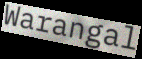
Warangal